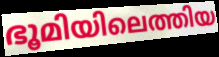
ഭൂമിയിലെത്തിയ